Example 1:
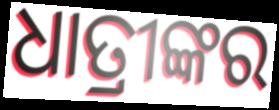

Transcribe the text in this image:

ଧାତ୍ରୀଙ୍କର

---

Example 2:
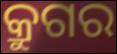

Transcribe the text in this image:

କ୍ରୁଗର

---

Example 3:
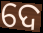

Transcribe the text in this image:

ଦେ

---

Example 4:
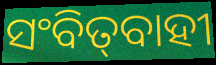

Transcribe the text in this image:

ସଂବିତ୍‌ବାହୀ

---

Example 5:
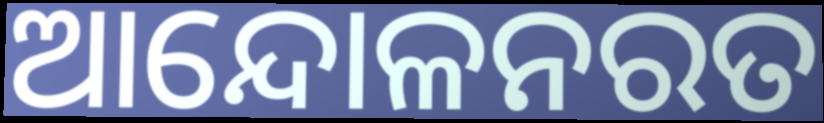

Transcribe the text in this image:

ଆନ୍ଦୋଳନରତ